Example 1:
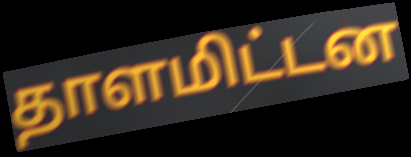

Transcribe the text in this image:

தாளமிட்டன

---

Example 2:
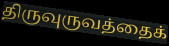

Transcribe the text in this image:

திருவுருவத்தைக்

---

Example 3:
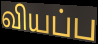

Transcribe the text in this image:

வியப்ப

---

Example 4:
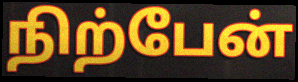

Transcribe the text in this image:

நிற்பேன்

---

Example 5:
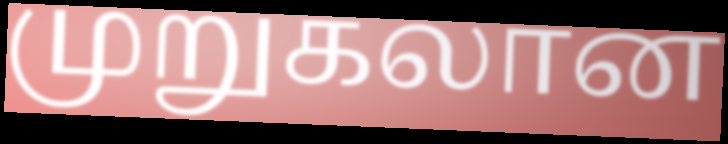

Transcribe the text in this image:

முறுகலான